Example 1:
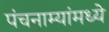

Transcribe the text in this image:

पंचनाम्यांमध्ये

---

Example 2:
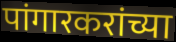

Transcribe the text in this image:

पांगारकरांच्या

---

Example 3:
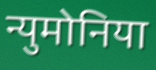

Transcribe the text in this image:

न्युमोनिया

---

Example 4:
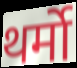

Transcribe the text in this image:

थर्मो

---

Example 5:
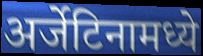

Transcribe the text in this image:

अर्जेटिनामध्ये